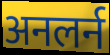
अनलर्न